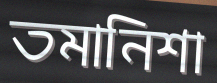
তমানিশা